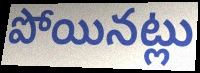
పోయినట్లు